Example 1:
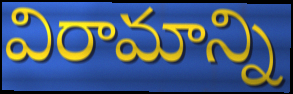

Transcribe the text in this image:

విరామాన్ని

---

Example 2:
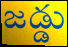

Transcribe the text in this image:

జడ్డు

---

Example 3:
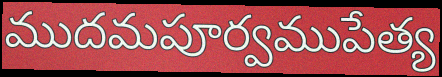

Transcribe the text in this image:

ముదమపూర్వముపేత్య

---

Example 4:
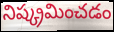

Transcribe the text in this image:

నిష్క్రమించడం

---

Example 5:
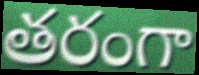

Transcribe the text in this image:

తరంగా